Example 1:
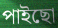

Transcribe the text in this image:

পাইছো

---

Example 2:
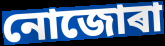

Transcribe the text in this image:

নোজোৰা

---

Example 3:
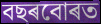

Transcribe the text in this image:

বছৰবোৰত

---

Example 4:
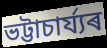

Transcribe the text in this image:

ভট্টাচাৰ্য্যৰ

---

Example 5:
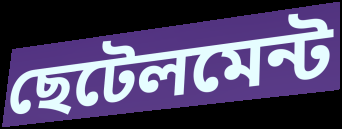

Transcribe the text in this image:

ছেটেলমেন্ট